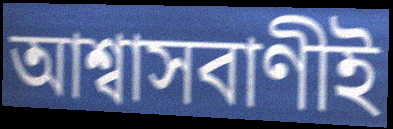
আশ্বাসবাণীই